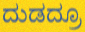
ದುಡದ್ರೂ